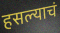
हसल्याचं